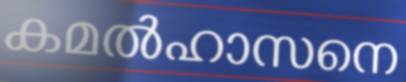
കമൽഹാസനെ